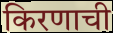
किरणाची